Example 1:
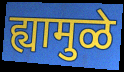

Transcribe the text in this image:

ह्यामुळे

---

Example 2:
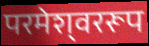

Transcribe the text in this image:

परमेश्वररूप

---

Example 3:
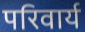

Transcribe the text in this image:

परिवार्य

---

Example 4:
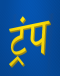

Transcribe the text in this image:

ट्रंप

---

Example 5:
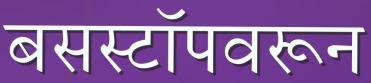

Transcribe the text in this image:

बसस्टॉपवरून